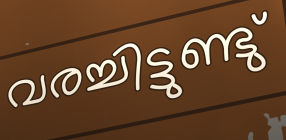
വരച്ചിട്ടുണ്ടു്